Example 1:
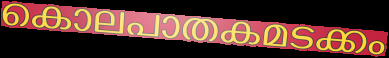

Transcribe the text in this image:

കൊലപാതകമടക്കം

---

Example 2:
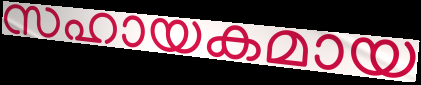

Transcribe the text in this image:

സഹായകമായ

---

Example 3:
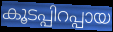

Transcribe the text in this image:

കൂടപ്പിറപ്പായ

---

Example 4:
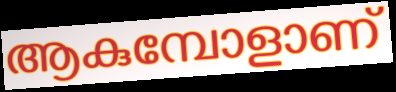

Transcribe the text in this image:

ആകുമ്പോളാണ്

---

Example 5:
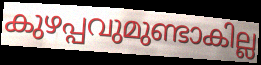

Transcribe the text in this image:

കുഴപ്പവുമുണ്ടാകില്ല